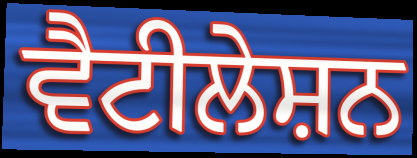
ਵੈਟੀਲੇਸ਼ਨ